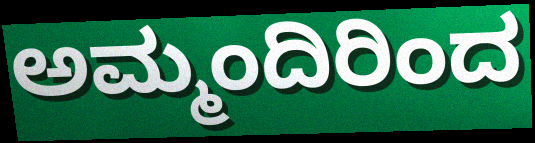
ಅಮ್ಮಂದಿರಿಂದ